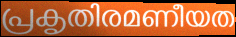
പ്രകൃതിരമണീയത